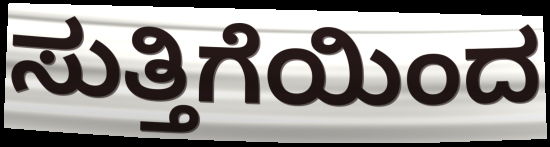
ಸುತ್ತಿಗೆಯಿಂದ